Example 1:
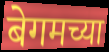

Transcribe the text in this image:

बेगमच्या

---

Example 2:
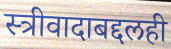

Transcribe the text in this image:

स्त्रीवादाबद्दलही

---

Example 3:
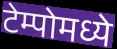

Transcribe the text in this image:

टेम्पोमध्ये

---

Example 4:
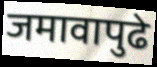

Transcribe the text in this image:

जमावापुढे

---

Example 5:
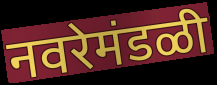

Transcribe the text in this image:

नवरेमंडळी